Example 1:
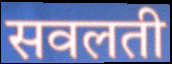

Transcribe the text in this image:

सवलती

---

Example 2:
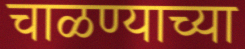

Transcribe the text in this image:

चाळण्याच्या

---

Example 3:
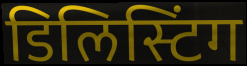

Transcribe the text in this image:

डिलिस्टिंग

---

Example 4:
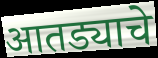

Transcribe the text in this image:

आतड्याचे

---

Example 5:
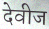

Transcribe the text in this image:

देवीज